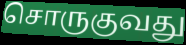
சொருகுவது